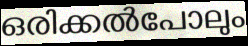
ഒരിക്കൽപോലും